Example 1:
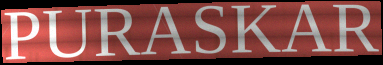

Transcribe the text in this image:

PURASKAR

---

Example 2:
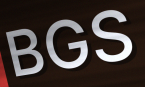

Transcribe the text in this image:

BGS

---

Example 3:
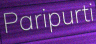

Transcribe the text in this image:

Paripurti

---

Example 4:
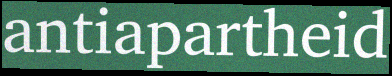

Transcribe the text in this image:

antiapartheid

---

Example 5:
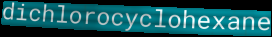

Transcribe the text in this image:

dichlorocyclohexane